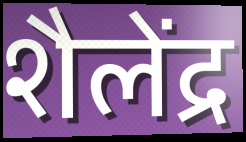
शैलेंद्र